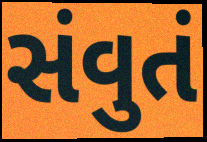
સંવુતં